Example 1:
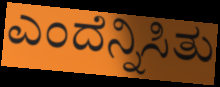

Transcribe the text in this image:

ಎಂದೆನ್ನಿಸಿತು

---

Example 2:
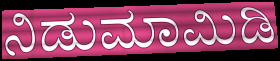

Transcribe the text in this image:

ನಿಡುಮಾಮಿಡಿ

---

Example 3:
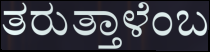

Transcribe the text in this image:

ತರುತ್ತಾಳೆಂಬ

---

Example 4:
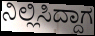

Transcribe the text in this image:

ನಿಲ್ಲಿಸಿದ್ದಾಗ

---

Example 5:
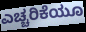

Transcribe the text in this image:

ಎಚ್ಚರಿಕೆಯೂ